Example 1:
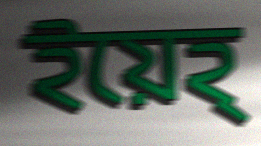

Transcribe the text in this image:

ইয়েহ্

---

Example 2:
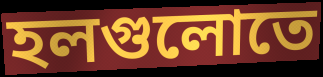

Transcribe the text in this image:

হলগুলোতে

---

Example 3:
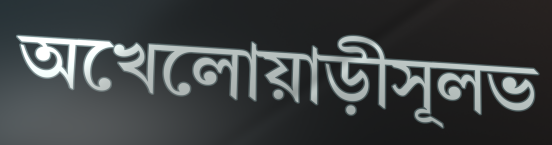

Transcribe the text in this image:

অখেলোয়াড়ীসূলভ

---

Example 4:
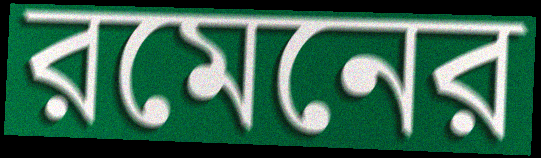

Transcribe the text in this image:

রমেনের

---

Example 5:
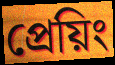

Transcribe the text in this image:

প্রেয়িং